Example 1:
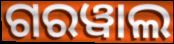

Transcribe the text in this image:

ଗରୱାଲ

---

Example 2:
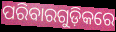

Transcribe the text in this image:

ପରିବାରଗୁଡ଼ିକରେ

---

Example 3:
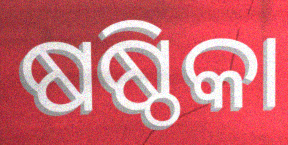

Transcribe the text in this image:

ଷଷ୍ଠିକା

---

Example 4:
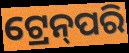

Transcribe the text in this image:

ଟ୍ରେନ୍‌ପରି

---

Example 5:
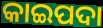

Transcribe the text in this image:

କାଇପଦା